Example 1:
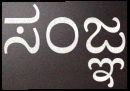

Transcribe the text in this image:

ಸಂಜ್ಞ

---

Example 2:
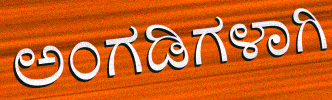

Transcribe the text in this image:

ಅಂಗಡಿಗಳಾಗಿ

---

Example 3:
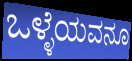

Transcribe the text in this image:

ಒಳ್ಳೆಯವನೂ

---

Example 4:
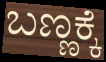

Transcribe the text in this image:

ಬಣ್ಣಕ್ಕೆ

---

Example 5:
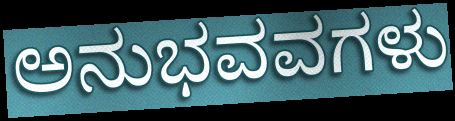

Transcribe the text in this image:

ಅನುಭವವಗಳು